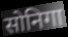
सोनिगा